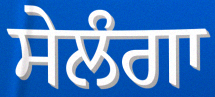
ਸੇਲੰਗਾ